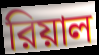
রিয়াল